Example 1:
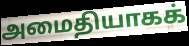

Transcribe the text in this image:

அமைதியாகக்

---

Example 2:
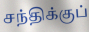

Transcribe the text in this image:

சந்திக்குப்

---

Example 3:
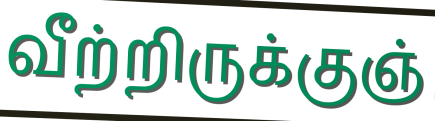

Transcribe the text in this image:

வீற்றிருக்குஞ்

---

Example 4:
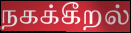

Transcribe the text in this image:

நகக்கீறல்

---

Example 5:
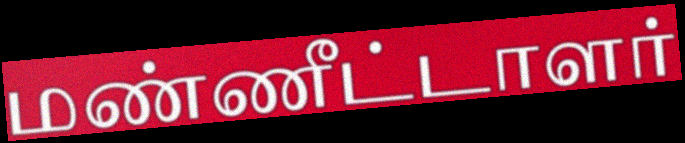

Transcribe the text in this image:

மண்ணீட்டாளர்